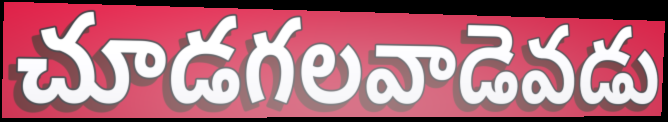
చూడగలవాడెవడు